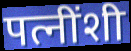
पत्नींशी